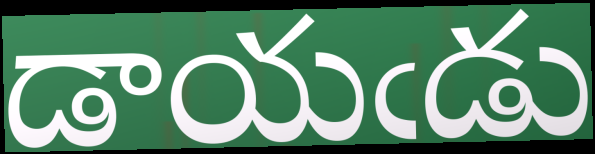
డాయఁడు